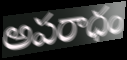
అపరాధం